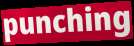
punching